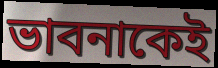
ভাবনাকেই